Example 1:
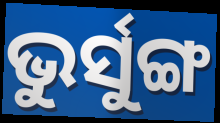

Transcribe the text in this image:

ଭୁର୍ସୁଙ୍ଗ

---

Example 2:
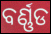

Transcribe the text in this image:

ବର୍ଣ୍ଣଡ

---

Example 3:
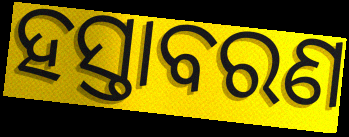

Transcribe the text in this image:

ହସ୍ତାବରଣ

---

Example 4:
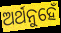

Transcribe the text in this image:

ଅର୍ଥନୁହେଁ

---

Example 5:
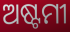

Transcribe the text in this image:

ଅଷ୍ଟମୀ